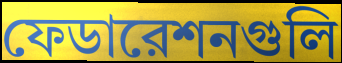
ফেডারেশনগুলি